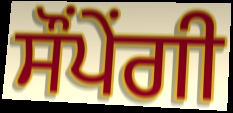
ਸੌਂਪੇਂਗੀ